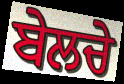
ਬੇਲਚੇ